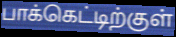
பாக்கெட்டிற்குள்